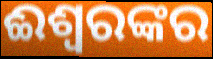
ଈଶ୍ୱରଙ୍କର